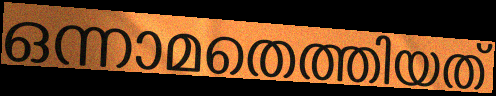
ഒന്നാമതെത്തിയത്